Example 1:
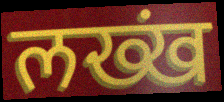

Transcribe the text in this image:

लख्खं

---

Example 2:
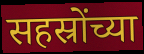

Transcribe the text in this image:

सहस्रोंच्या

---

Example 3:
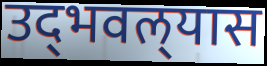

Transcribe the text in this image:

उद्भवल्यास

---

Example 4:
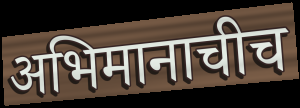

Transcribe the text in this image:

अभिमानाचीच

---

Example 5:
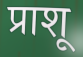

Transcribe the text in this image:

प्राशू